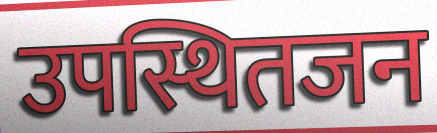
उपस्थितजन